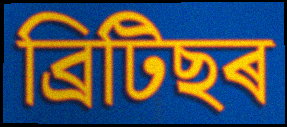
ব্ৰিটিছৰ